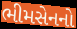
ભીમસેનનો